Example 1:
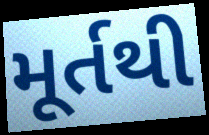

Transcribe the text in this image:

મૂર્તથી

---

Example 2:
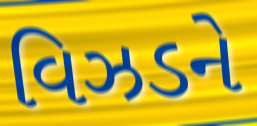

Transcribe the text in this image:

વિઝડને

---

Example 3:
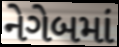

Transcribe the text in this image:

નેગેબમાં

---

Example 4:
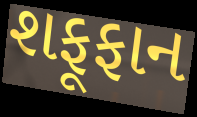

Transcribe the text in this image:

શફૂફાન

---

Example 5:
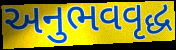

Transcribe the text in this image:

અનુભવવૃદ્ધ